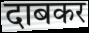
दाबकर